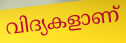
വിദ്യകളാണ്